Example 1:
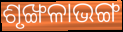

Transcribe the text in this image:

ଶୃଙ୍ଖଳାଭଙ୍ଗ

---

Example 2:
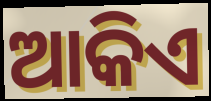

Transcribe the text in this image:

ଆକିଏ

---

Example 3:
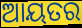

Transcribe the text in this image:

ଆୟତର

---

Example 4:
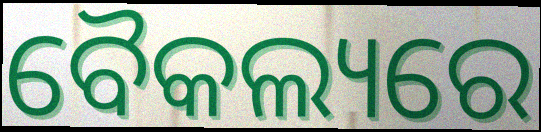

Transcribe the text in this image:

ବୈକଲ୍ୟରେ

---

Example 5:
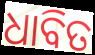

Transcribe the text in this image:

ଧାବିତ